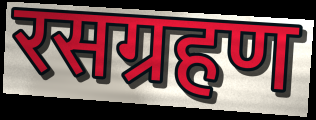
रसग्रहण